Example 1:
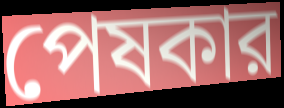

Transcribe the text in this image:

পেষকার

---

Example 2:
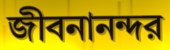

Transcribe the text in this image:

জীবনানন্দর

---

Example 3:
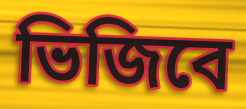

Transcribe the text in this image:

ভিজিবে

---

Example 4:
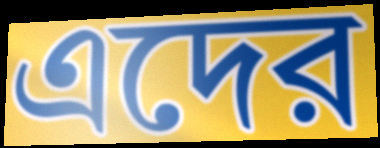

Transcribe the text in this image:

এদের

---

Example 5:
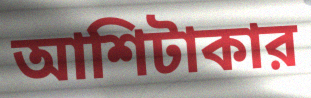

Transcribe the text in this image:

আশিটাকার